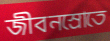
জীবনস্রোতে